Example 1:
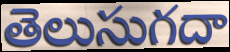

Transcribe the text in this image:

తెలుసుగదా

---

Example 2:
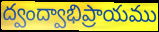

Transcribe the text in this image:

ద్వంద్వాభిప్రాయము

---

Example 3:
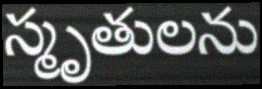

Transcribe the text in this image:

స్మృతులను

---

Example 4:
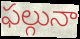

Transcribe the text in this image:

ఫల్గునా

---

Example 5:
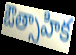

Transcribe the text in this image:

ఔత్సాహిక